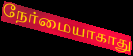
நேர்மையாகாது